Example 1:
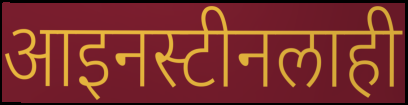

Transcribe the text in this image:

आइनस्टीनलाही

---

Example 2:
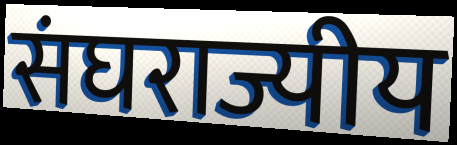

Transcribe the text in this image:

संघराज्यीय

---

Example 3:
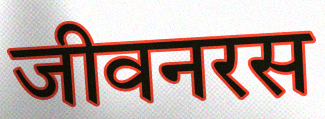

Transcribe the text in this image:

जीवनरस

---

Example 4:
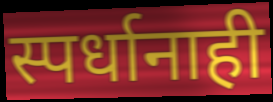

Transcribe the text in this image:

स्पर्धानाही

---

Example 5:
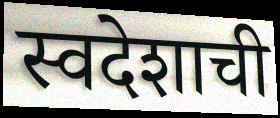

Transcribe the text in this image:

स्वदेशाची